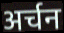
अर्चन